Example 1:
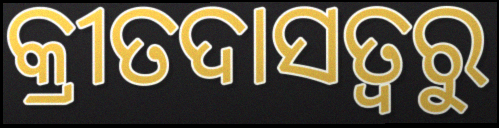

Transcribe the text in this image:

କ୍ରୀତଦାସତ୍ୱରୁ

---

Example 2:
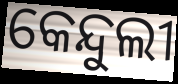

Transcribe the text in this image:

କେନ୍ଦୁଲୀ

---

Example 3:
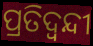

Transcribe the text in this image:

ପ୍ରତିଦ୍ଵନ୍ଦୀ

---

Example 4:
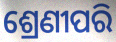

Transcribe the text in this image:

ଶ୍ରେଣୀପରି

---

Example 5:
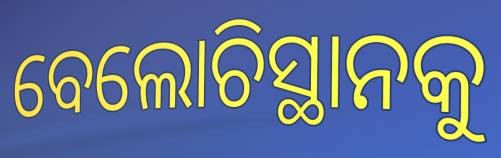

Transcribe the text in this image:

ବେଲୋଚିସ୍ଥାନକୁ